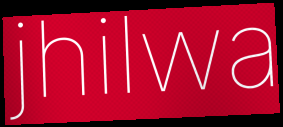
jhilwa